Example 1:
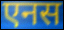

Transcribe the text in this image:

एनस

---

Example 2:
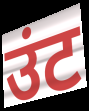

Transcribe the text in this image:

उंट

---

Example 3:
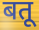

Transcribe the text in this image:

बतू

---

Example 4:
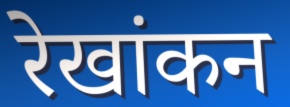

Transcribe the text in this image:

रेखांकन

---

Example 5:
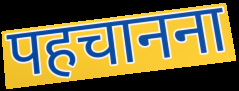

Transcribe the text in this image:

पहचानना